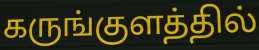
கருங்குளத்தில்